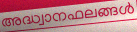
അദ്ധ്വാനഫലങ്ങൾ